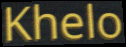
Khelo